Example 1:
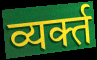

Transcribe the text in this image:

व्यर्क्त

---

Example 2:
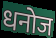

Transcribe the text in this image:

धनोज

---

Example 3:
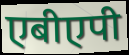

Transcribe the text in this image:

एबीएपी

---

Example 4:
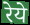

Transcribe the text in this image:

रेये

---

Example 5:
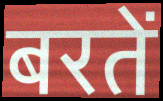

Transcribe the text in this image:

बरतें